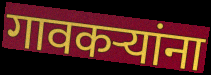
गावकऱ्यांना